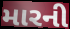
મારની